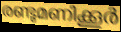
രണ്ടുമണിക്കൂർ